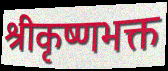
श्रीकृष्णभक्त